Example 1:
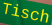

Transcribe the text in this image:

Tisch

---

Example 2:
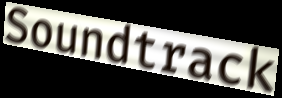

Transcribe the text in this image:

Soundtrack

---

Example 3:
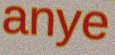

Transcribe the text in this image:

anye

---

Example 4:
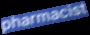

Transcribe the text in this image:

pharmacist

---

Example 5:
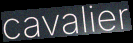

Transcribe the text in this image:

cavalier